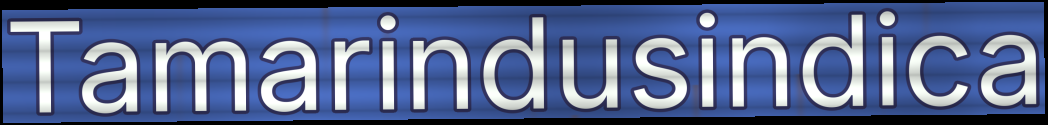
Tamarindusindica